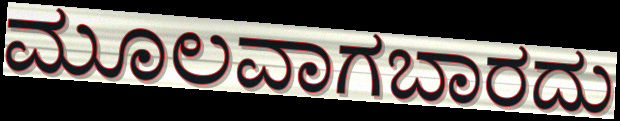
ಮೂಲವಾಗಬಾರದು